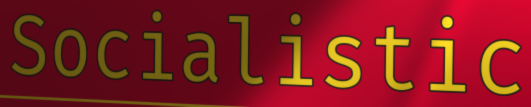
Socialistic